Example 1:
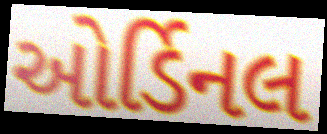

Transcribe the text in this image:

ઓર્ડિનલ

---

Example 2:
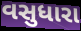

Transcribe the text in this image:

વસુધારા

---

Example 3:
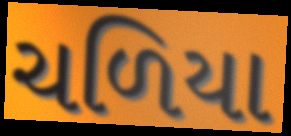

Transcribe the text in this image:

ચળિયા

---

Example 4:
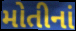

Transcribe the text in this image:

મોતીનાં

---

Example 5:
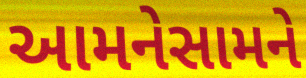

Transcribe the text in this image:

આમનેસામને